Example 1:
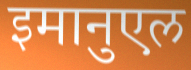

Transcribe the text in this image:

इमानुएल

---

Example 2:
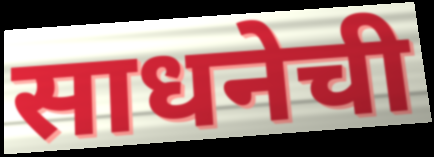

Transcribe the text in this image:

साधनेची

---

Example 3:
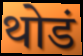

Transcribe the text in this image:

थोडं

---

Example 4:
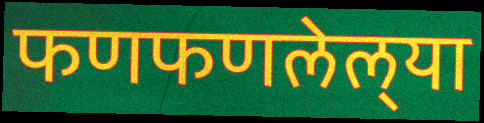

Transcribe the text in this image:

फणफणलेल्या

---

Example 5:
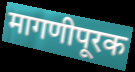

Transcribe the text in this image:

मागणीपूरक